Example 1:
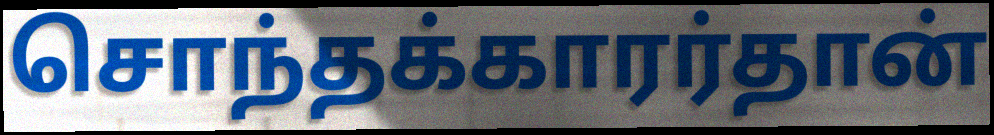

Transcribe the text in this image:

சொந்தக்காரர்தான்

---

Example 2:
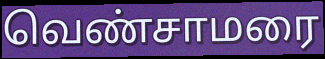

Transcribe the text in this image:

வெண்சாமரை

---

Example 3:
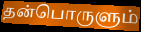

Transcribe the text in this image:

தன்பொருளும்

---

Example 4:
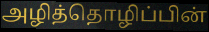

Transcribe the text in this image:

அழித்தொழிப்பின்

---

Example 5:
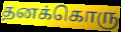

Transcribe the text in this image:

தனக்கொரு